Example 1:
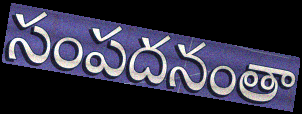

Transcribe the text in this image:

సంపదనంతా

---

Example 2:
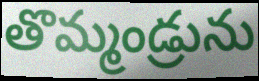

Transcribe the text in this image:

తొమ్మండ్రును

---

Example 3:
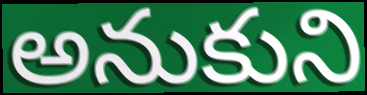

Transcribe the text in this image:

అనుకుని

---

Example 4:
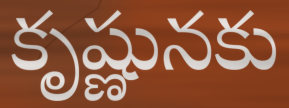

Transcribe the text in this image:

కృష్ణునకు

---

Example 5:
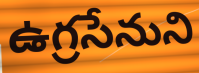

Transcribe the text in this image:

ఉగ్రసేనుని